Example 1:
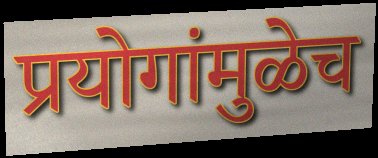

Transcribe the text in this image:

प्रयोगांमुळेच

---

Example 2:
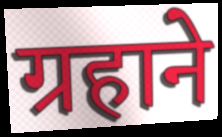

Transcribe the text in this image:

ग्रहाने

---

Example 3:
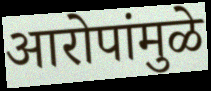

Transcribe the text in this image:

आरोपांमुळे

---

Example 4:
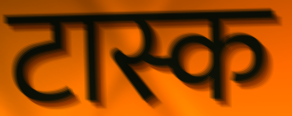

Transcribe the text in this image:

टास्क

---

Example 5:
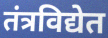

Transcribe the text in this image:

तंत्रविद्येत